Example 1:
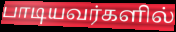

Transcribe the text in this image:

பாடியவர்களில்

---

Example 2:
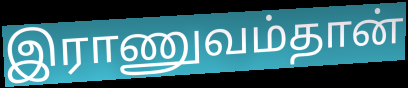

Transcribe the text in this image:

இராணுவம்தான்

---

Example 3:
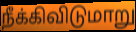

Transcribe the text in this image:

நீக்கிவிடுமாறு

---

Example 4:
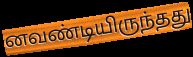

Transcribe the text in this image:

னவண்டியிருந்தது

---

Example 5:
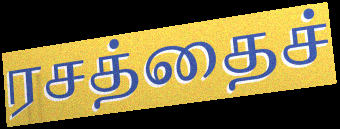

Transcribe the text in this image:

ரசத்தைச்